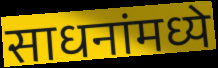
साधनांमध्ये